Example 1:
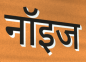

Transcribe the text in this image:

नॉइज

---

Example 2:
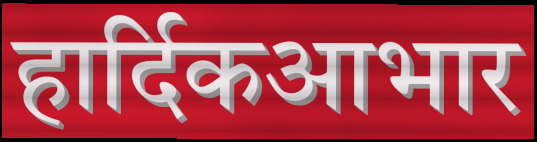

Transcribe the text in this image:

हार्दिकआभार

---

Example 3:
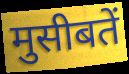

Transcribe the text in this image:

मुसीबतें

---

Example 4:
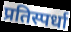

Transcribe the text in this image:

प्रतिस्पर्धा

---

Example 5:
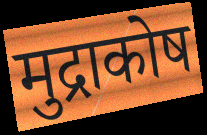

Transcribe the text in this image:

मुद्राकोष